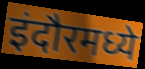
इंदौरमध्ये